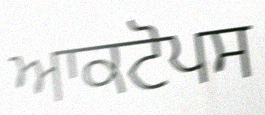
ਆਕਟੋਪਸ